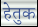
हेतुक